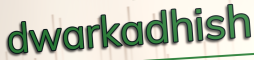
dwarkadhish